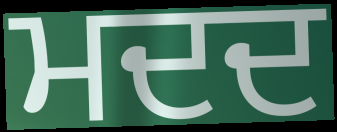
ਮਦਦ